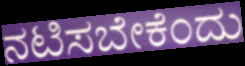
ನಟಿಸಬೇಕೆಂದು